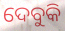
ଦେବୁକି